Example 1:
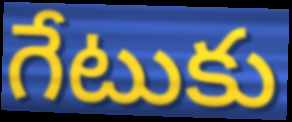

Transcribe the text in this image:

గేటుకు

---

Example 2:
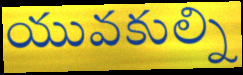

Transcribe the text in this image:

యువకుల్ని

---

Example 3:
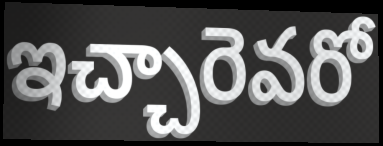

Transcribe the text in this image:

ఇచ్చారెవరో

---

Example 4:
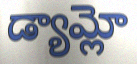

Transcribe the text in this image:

డ్యామ్లో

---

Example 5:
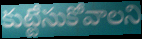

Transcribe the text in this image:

కుట్టేసుకోవాలని